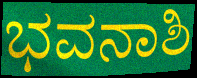
ಭವನಾಶಿ